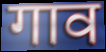
गाव